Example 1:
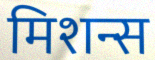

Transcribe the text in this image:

मिशन्स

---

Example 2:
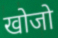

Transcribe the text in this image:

खोजो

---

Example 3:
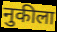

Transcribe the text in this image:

नुकीला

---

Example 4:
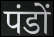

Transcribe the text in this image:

पंडों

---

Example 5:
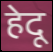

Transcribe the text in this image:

हेदू